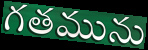
గతమును